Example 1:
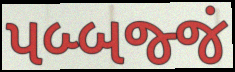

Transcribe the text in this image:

પબ્બજ્જં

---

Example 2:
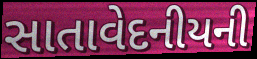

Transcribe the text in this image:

સાતાવેદનીયની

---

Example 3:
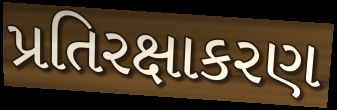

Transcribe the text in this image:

પ્રતિરક્ષાકરણ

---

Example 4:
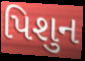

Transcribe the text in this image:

પિશુન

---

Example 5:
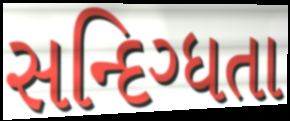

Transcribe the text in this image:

સન્દિગ્ધતા